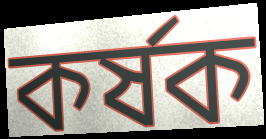
কর্ষক